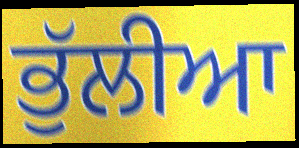
ਭੁੱਲੀਆ